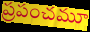
ప్రపంచమూ